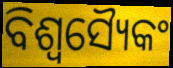
ବିଶ୍ୱସ୍ୟୈକଂ